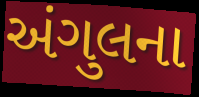
અંગુલના